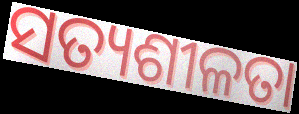
ସତ୍ୟଶୀଳତା